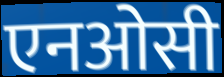
एनओसी